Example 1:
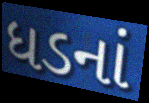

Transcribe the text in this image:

ધડનાં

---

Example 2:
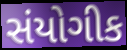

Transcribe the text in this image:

સંયોગીક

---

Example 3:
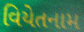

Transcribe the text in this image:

વિયેતનામ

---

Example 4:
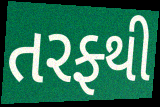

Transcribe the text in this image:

તરફ્થી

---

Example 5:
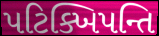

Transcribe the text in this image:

પટિક્ખિપન્તિ